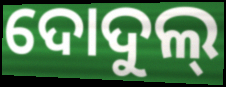
ଦୋଦୁଲ୍